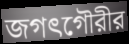
জগৎগৌরীর